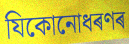
যিকোনোধৰণৰ